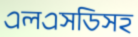
এলএসডিসহ